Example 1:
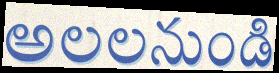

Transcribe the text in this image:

అలలనుండి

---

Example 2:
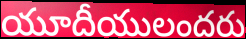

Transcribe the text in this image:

యూదీయులందరు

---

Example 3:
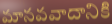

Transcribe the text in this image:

మానవవాదానికి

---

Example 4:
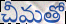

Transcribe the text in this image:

చీమతో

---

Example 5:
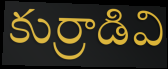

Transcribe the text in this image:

కుర్రాడివి